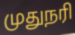
முதுநரி